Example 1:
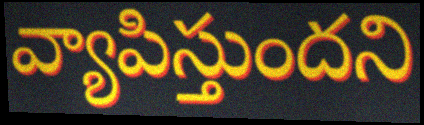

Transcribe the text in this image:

వ్యాపిస్తుందని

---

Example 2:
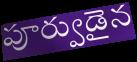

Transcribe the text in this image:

పూర్వుడైన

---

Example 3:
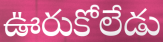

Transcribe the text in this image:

ఊరుకోలేడు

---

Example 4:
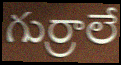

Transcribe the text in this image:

గుర్రాలే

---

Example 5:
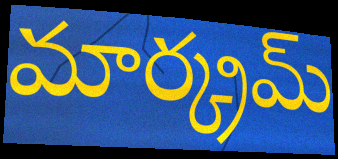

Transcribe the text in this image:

మార్క్రమ్